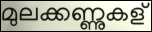
മുലക്കണ്ണുകള്